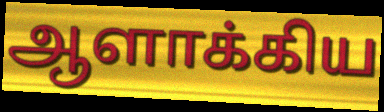
ஆளாக்கிய